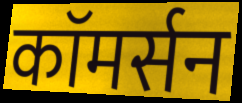
कॉमर्सन